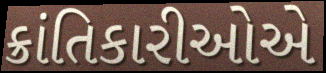
ક્રાંતિકારીઓએ